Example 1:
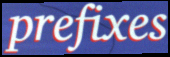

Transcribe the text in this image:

prefixes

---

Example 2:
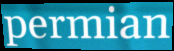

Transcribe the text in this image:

permian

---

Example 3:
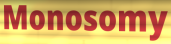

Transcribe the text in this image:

Monosomy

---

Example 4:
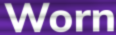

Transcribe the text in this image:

Worn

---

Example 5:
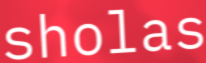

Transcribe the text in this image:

sholas